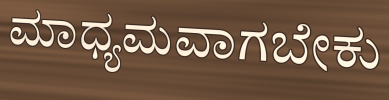
ಮಾಧ್ಯಮವಾಗಬೇಕು